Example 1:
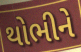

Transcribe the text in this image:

થોભીને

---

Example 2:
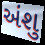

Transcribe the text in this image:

અંશુ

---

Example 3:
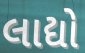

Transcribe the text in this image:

લાદ્યો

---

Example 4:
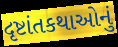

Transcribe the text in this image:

દૃષ્ટાંતકથાઓનું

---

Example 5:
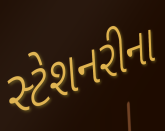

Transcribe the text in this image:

સ્ટેશનરીના